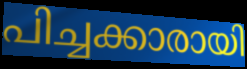
പിച്ചക്കാരായി